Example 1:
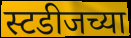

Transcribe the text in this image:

स्टडीजच्या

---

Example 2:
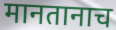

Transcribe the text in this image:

मानतानाच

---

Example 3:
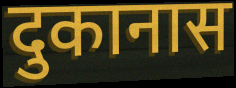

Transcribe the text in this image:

दुकानास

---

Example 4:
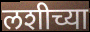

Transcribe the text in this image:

लशीच्या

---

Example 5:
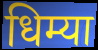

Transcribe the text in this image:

धिम्या